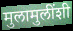
मुलामुलींशी